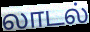
லாடல்